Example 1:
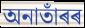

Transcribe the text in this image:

অনাতাঁৰৰ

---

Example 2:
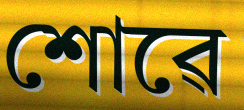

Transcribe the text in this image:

শোৱে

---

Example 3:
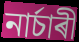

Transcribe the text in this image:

নাৰ্চাৰী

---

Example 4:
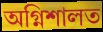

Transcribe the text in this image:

অগ্নিশালত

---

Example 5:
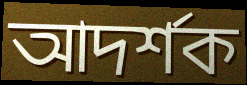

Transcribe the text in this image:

আদৰ্শক